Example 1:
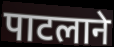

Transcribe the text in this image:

पाटलाने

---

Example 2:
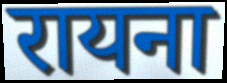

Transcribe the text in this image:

रायना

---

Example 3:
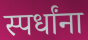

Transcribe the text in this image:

स्पर्धांना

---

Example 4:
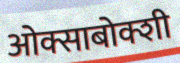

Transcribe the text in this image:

ओक्साबोक्शी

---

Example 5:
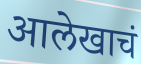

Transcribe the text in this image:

आलेखाचं